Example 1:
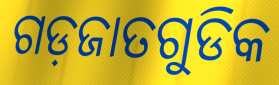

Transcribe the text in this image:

ଗଡ଼ଜାତଗୁଡିକ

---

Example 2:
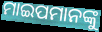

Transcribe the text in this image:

ମାଇପମାନଙ୍କୁ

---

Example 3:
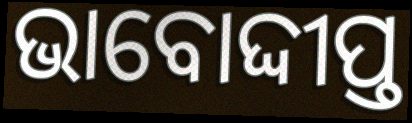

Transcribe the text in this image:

ଭାବୋଦ୍ଦୀପ୍ତ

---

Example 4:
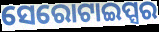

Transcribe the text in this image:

ସେରୋଟାଇପ୍ସର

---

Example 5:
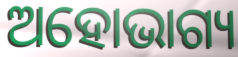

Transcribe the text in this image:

ଅହୋଭାଗ୍ୟ